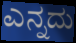
ಎನ್ನದು